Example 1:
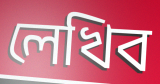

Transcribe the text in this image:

লেখিব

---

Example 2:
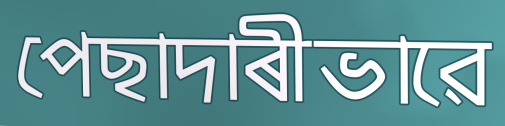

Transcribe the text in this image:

পেছাদাৰীভাৱে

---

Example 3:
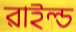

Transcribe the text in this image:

ৱাইল্ড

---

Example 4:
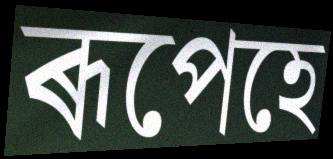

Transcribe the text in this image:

ৰূপেহে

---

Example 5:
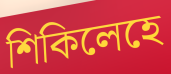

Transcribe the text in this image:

শিকিলেহে